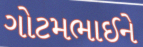
ગોટમભાઈને